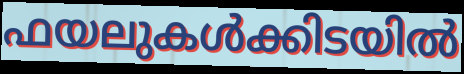
ഫയലുകൾക്കിടയിൽ